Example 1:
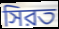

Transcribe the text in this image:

সিরত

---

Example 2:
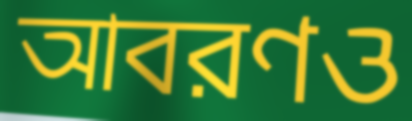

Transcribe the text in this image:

আবরণও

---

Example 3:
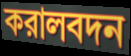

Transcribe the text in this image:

করালবদন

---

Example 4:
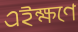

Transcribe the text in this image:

এইক্ষণে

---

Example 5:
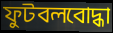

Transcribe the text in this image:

ফুটবলবোদ্ধা